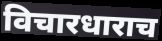
विचारधाराच